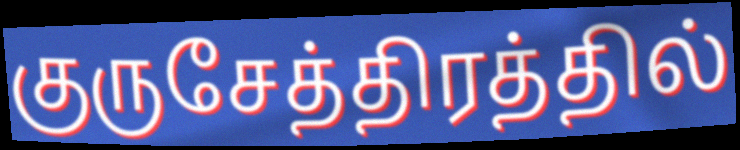
குருசேத்திரத்தில்